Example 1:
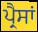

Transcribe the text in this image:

ਪ੍ਰੈਸਾਂ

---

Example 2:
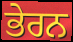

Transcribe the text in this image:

ਭੇਰਨ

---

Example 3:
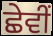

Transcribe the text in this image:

ਛੇਵੀਂ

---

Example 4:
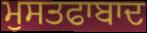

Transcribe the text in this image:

ਮੁਸਤਫਾਬਾਦ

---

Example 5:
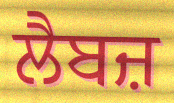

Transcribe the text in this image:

ਲੈਬਜ਼